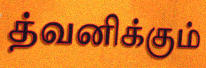
த்வனிக்கும்